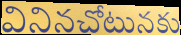
వినినచోటునకు